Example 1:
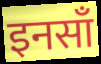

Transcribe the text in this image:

इनसाँ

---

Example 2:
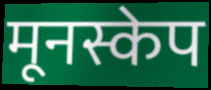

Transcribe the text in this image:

मूनस्केप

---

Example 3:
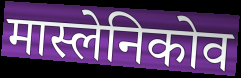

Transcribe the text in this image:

मास्लेनिकोव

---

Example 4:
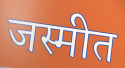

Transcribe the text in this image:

जस्मीत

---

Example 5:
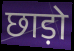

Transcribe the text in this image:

छाड़ो